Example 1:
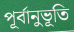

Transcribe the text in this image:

পূর্বানুভূতি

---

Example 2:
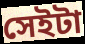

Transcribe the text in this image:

সেইটা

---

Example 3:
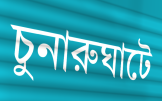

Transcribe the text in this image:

চুনারুঘাটে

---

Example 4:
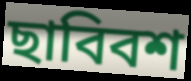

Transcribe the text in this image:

ছাবিবশ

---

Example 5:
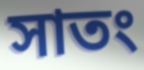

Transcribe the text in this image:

সাতং